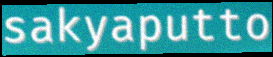
sakyaputto